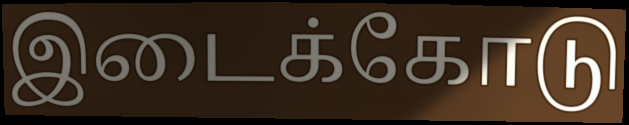
இடைக்கோடு